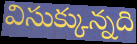
విసుక్కున్నది